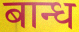
बान्ध